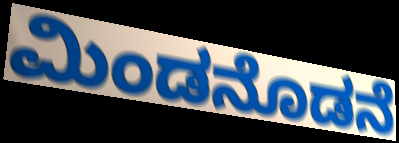
ಮಿಂಡನೊಡನೆ